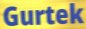
Gurtek